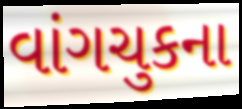
વાંગચુકના